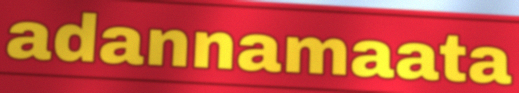
adannamaata